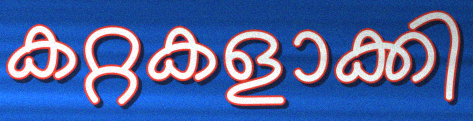
കറ്റകളാക്കി